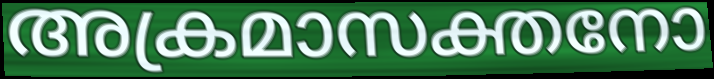
അക്രമാസക്തനോ